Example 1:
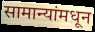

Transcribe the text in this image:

सामान्यांमधून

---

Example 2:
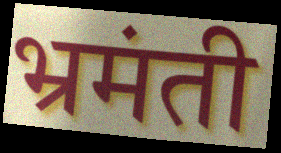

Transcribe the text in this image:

भ्रमंती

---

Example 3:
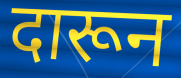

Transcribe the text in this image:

दारून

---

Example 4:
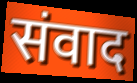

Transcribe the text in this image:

संवाद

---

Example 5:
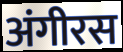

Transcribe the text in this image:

अंगीरस